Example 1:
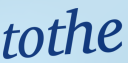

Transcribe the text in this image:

tothe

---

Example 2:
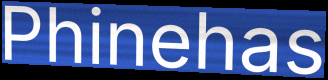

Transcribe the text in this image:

Phinehas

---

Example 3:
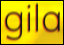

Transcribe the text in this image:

gila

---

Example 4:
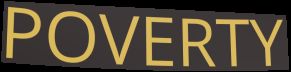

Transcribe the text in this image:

POVERTY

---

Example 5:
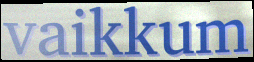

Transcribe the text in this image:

vaikkum